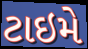
ટાઇમે